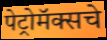
पेट्रोमॅक्सचे